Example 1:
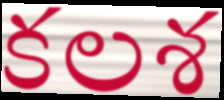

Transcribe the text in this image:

కలశ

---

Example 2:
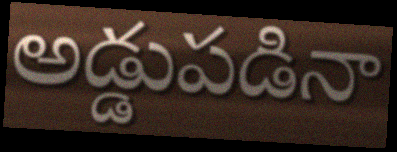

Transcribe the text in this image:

అడ్డుపడినా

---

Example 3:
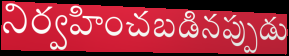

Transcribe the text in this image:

నిర్వహించబడినప్పుడు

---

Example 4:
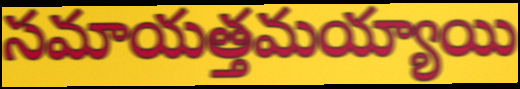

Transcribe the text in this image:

సమాయత్తమయ్యాయి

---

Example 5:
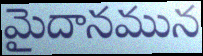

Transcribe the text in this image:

మైదానమున